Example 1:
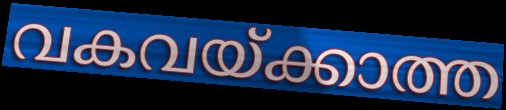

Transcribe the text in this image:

വകവയ്ക്കാത്ത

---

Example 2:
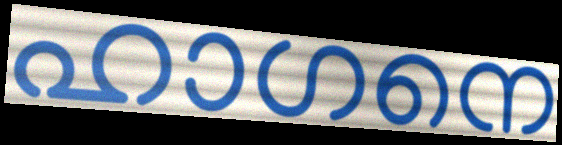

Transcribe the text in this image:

ഹാഗനെ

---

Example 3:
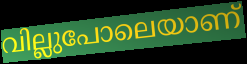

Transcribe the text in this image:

വില്ലുപോലെയാണ്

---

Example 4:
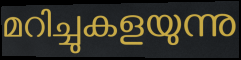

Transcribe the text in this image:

മറിച്ചുകളയുന്നു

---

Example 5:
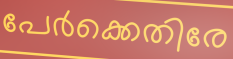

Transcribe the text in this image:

പേർക്കെതിരേ